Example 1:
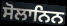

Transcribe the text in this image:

ਸੋਲਾਨਿਨ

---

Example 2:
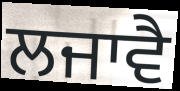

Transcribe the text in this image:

ਲਜਾਵੈ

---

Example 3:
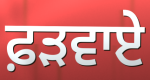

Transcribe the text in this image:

ਫ਼ੜਵਾਏ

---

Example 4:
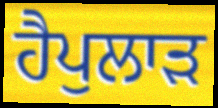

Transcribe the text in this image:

ਹੈਪੁਲਾੜ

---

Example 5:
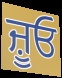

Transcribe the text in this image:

ਜ਼ੂਓ